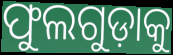
ଫୁଲଗୁଡ଼ାକୁ